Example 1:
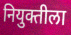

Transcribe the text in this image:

नियुक्तीला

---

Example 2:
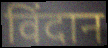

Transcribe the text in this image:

विंदान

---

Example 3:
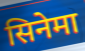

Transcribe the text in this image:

सिनेमा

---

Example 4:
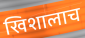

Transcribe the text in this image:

खिशालाच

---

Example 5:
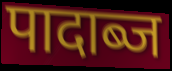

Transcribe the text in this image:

पादाब्ज